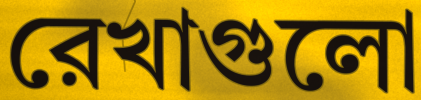
রেখাগুলো